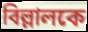
বিল্লালকে